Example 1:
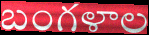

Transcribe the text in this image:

బంగళాల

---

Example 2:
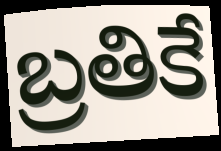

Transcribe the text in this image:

బ్రతికే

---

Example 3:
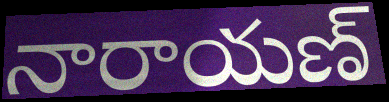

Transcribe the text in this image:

నారాయణ్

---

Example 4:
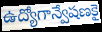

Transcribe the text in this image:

ఉద్యోగాన్వేషణకై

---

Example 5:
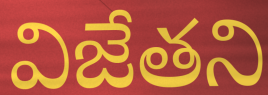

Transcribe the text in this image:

విజేతని